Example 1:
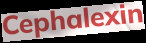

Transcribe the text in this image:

Cephalexin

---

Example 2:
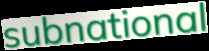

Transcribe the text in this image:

subnational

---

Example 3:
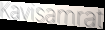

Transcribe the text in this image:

Kavisamrat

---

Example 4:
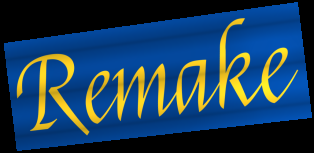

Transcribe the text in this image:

Remake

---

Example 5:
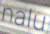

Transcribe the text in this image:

nalu